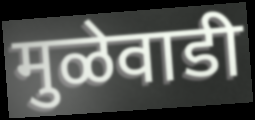
मुळेवाडी